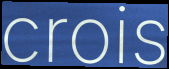
crois